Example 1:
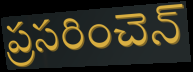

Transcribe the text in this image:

ప్రసరించెన్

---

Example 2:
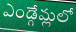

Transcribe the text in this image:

ఎండ్గేమ్లలో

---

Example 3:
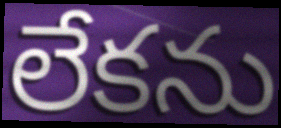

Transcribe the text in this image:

లేకను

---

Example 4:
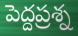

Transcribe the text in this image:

పెద్దప్రశ్న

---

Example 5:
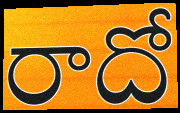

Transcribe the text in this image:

రాదో